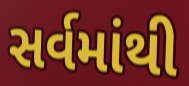
સર્વમાંથી